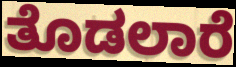
ತೊಡಲಾರೆ